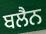
ਬਲੈਨ